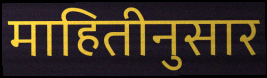
माहितीनुसार